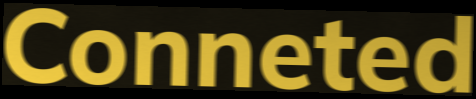
Conneted